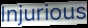
Injurious